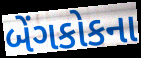
બેંગકોકના